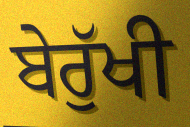
ਬੇਰੁੱਖੀ